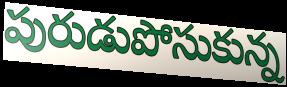
పురుడుపోసుకున్న